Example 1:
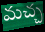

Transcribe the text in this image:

మచ్చ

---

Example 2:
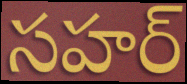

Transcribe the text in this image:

సహర్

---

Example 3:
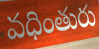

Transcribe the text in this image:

వధింతురు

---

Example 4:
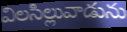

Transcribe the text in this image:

విలసిల్లువాడును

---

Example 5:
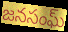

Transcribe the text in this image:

జనసంఘ్